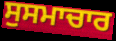
ਸੁਸਮਾਚਾਰ